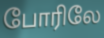
போரிலே